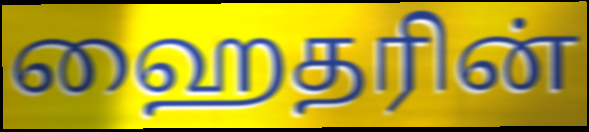
ஹைதரின்